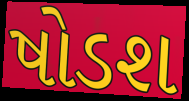
ષોડશ